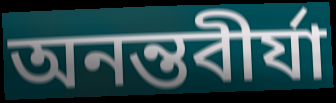
অনন্তবীর্যা